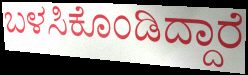
ಬಳಸಿಕೊಂಡಿದ್ದಾರೆ